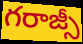
గరాజ్సీ